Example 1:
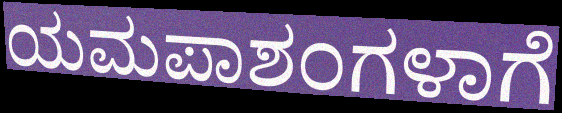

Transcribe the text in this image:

ಯಮಪಾಶಂಗಳಾಗೆ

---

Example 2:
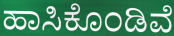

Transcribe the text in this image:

ಹಾಸಿಕೊಂಡಿವೆ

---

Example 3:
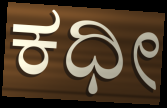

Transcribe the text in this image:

ಕಧೀ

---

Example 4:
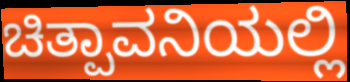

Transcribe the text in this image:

ಚಿತ್ಪಾವನಿಯಲ್ಲಿ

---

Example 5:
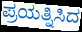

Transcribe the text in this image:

ಪ್ರಯತ್ನಿಸಿದ